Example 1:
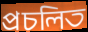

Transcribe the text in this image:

প্রচলিত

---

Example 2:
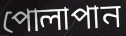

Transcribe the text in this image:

পোলাপান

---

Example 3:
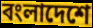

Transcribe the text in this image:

বংলাদেশে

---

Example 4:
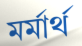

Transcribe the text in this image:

মর্মার্থ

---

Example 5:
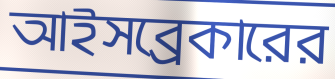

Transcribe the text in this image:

আইসব্রেকারের